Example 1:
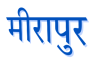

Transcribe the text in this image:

मीरापुर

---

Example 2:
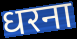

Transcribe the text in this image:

धरना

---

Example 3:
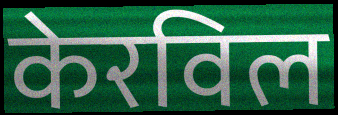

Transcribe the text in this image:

केरविल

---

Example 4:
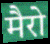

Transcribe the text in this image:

मैरो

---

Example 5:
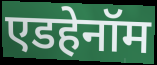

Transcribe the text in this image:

एडहेनॉम